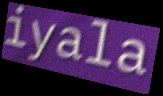
iyala